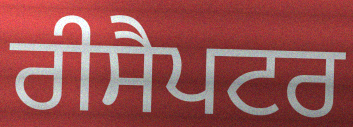
ਰੀਸੈਪਟਰ